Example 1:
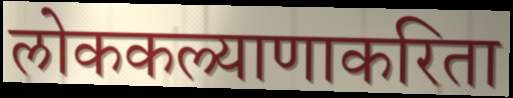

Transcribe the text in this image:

लोककल्याणाकरिता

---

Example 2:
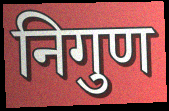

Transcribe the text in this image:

निगुण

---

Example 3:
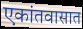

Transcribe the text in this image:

एकांतवासात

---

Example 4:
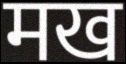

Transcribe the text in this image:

मख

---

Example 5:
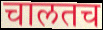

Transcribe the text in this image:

चालतच